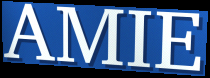
AMIE